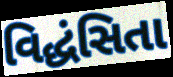
વિદ્ધંસિતા